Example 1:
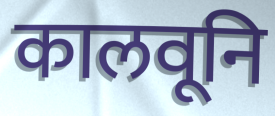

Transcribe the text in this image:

कालवूनि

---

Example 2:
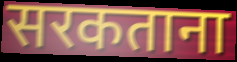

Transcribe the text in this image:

सरकताना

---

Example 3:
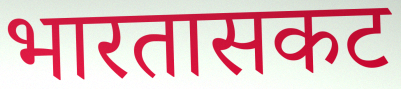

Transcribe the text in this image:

भारतासकट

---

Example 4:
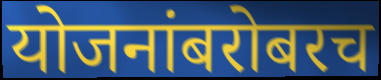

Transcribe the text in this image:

योजनांबरोबरच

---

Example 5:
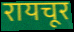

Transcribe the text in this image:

रायचूर